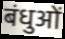
बंधुओं